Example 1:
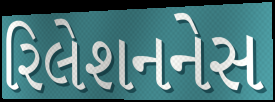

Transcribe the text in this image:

રિલેશનનેસ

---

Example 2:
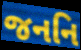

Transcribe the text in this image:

જનનિ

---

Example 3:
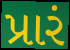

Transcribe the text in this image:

પ્રારં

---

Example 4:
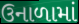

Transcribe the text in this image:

ઉનાળામાં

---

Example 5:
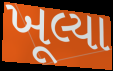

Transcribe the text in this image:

ખૂલ્યા